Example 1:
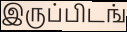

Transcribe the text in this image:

இருப்பிடங்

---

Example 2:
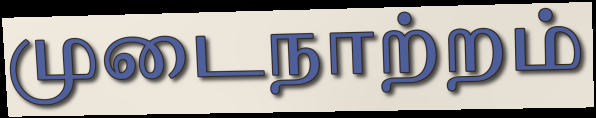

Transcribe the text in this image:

முடைநாற்றம்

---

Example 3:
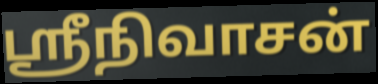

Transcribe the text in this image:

ஸ்ரீநிவாசன்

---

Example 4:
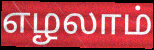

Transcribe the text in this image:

எழலாம்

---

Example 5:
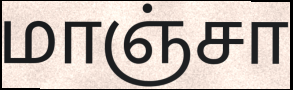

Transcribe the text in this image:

மாஞ்சா